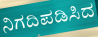
ನಿಗದಿಪಡಿಸಿದ